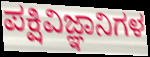
ಪಕ್ಷಿವಿಜ್ಞಾನಿಗಳ